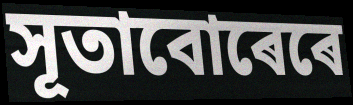
সূতাবোৰেৰে